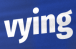
vying